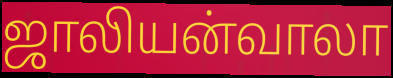
ஜாலியன்வாலா